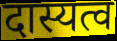
दास्यत्व